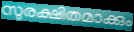
സുരക്ഷിതമാക്കും